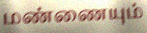
மண்ணையும்